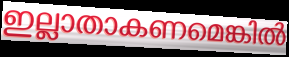
ഇല്ലാതാകണമെങ്കിൽ